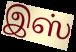
இஸ்